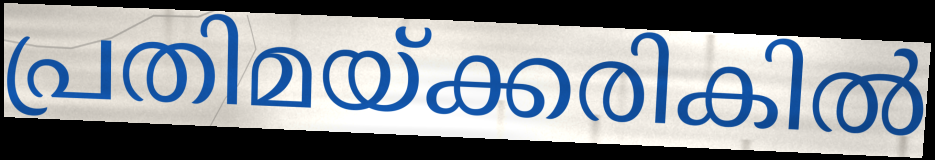
പ്രതിമയ്ക്കരികിൽ